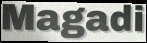
Magadi